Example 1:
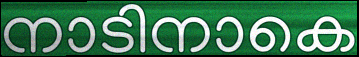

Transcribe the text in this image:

നാടിനാകെ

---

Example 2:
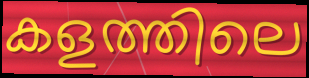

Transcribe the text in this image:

കളത്തിലെ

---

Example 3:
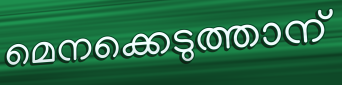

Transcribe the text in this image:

മെനക്കെടുത്താന്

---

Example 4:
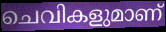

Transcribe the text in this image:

ചെവികളുമാണ്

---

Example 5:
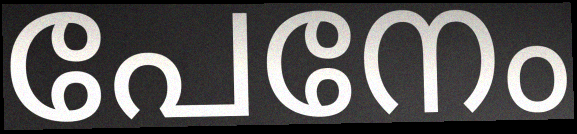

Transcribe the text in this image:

പേനേം